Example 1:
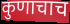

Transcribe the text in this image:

कुणाचाच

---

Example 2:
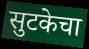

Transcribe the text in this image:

सुटकेचा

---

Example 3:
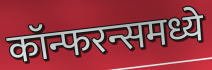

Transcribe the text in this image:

कॉन्फरन्समध्ये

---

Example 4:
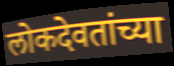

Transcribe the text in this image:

लोकदेवतांच्या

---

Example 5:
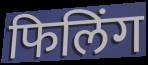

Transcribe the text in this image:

फिलिंग